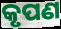
କୃପଣ